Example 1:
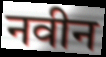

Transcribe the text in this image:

नवीन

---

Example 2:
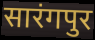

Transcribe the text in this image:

सारंगपुर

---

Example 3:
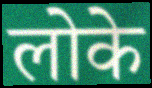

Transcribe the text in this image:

लोके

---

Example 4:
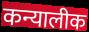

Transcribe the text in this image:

कन्यालीक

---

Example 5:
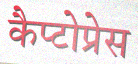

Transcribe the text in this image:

कैप्टोप्रेस